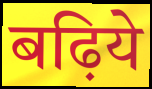
बढ़िये